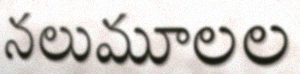
నలుమూలల